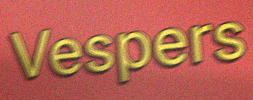
Vespers